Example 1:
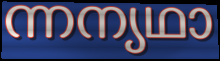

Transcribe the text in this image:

ന്നന്യഥാ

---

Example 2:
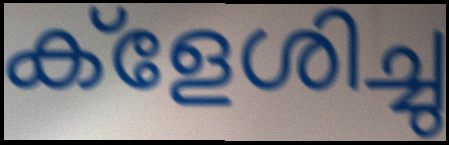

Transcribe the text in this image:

ക്ളേശിച്ചു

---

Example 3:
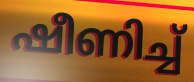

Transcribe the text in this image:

ഷീണിച്ച്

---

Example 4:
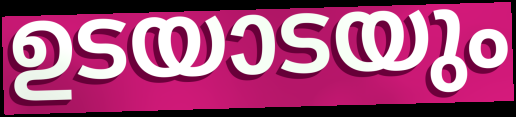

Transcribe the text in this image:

ഉടയാടയും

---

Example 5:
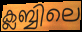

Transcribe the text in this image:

ക്ലബ്ബിലെ